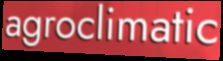
agroclimatic